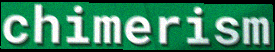
chimerism